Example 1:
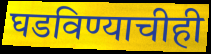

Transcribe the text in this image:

घडविण्याचीही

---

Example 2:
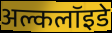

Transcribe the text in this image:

अल्कलॉइडे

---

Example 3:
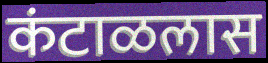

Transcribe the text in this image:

कंटाळलास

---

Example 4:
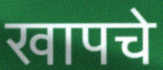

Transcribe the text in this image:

खापचे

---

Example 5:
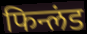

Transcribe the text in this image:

फिन्लंड